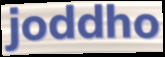
joddho